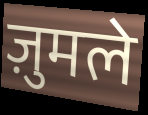
ज़ुमले